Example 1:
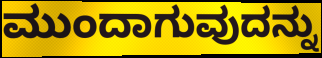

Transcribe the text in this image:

ಮುಂದಾಗುವುದನ್ನು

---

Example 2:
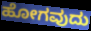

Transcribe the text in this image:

ಹೋಗವುದು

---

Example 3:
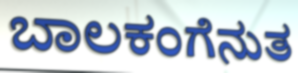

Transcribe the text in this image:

ಬಾಲಕಂಗೆನುತ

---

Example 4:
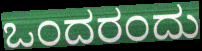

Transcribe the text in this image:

ಒಂದರಂದು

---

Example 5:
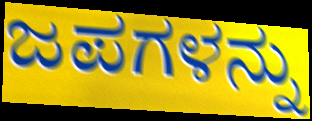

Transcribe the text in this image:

ಜಪಗಳನ್ನು